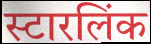
स्‍टारलिंक